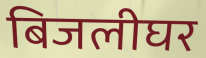
बिजलीघर